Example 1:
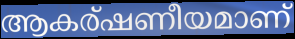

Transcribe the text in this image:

ആകര്ഷണീയമാണ്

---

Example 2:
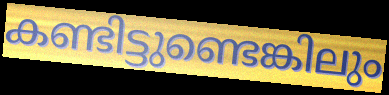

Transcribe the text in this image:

കണ്ടിട്ടുണ്ടെങ്കിലും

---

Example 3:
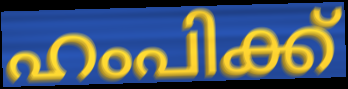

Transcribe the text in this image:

ഹംപിക്ക്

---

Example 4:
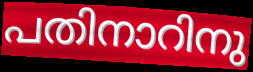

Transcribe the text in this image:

പതിനാറിനു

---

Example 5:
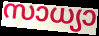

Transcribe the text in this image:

സാധ്യാ